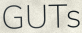
GUTs